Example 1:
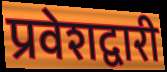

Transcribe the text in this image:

प्रवेशद्वारी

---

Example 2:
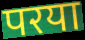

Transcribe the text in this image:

परया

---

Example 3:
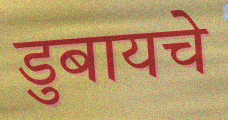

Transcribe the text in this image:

डुबायचे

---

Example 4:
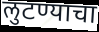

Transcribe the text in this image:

लुटण्याचा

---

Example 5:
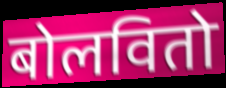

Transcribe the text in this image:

बोलवितो